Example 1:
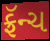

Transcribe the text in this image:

ફ્રૅન્ચ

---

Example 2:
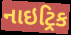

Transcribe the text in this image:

નાઇટ્રિક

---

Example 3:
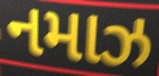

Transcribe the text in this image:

નમાઝ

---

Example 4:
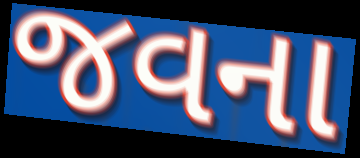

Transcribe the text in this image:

જવના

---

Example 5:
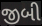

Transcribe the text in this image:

જીબી